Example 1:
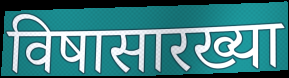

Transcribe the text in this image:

विषासारख्या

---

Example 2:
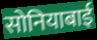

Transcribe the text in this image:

सोनियाबाई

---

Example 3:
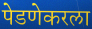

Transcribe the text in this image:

पेडणेकरला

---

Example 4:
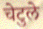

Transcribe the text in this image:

चेटुले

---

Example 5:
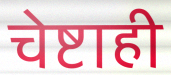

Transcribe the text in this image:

चेष्टाही